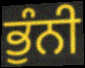
ਭੁੰਨੀ